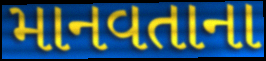
માનવતાના